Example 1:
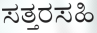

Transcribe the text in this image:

ಸತ್ತರಸಹಿ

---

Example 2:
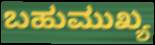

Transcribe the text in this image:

ಬಹುಮುಖ್ಯ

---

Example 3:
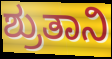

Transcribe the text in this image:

ಶ್ರುತಾನಿ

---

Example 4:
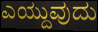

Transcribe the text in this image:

ಎಯ್ದುವುದು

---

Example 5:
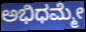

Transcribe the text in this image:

ಅಭಿಧಮ್ಮೇ